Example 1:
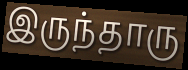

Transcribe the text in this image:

இருந்தாரு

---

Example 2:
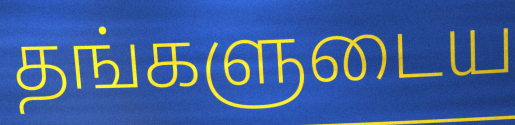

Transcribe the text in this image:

தங்களுடைய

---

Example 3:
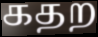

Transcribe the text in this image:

கதற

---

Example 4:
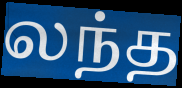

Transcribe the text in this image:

லந்த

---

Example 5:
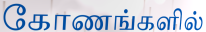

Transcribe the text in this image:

கோணங்களில்